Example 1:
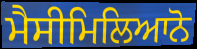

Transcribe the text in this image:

ਮੈਸੀਮਿਲਿਆਨੋ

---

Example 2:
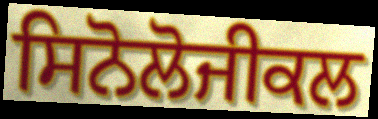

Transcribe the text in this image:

ਸਿਨੋਲੋਜੀਕਲ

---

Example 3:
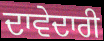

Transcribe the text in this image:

ਦਾਵੇਦਾਰੀ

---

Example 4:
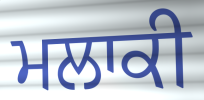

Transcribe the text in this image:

ਮਲਾਕੀ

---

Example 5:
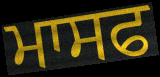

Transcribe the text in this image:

ਮਾਸਫ